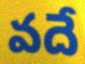
వదే